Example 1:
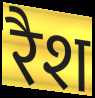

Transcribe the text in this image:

रैश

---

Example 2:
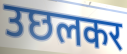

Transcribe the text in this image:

उछलकर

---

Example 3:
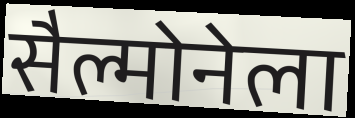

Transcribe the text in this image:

सैल्मोनेला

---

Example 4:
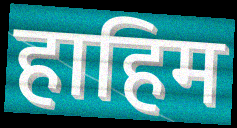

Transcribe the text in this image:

हाहिम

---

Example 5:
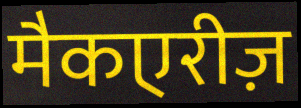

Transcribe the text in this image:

मैकएरीज़